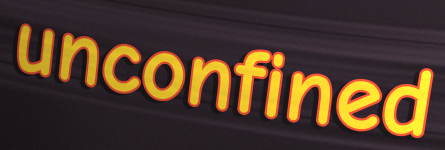
unconfined